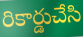
రికార్డుచేసి